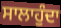
ਸਾਲਾਹੁੰਦਾ